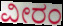
ವೀರಂ